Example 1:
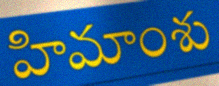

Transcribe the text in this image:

హిమాంశు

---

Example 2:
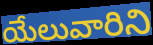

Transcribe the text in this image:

యేలువారిని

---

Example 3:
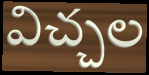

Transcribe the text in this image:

విచ్చల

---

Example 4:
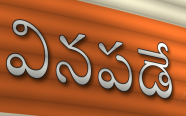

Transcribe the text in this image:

వినపడే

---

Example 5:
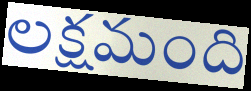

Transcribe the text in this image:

లక్షమంది